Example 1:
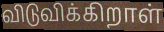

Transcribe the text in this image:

விடுவிக்கிறாள்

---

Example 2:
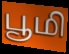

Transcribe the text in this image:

பூமி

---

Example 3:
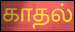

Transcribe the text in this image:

காதல்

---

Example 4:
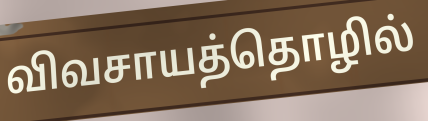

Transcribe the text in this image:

விவசாயத்தொழில்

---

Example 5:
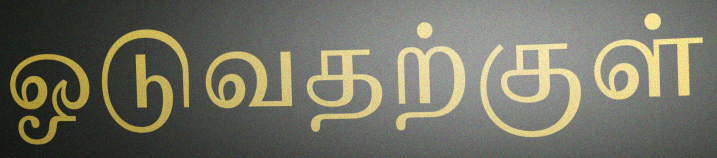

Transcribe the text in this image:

ஓடுவதற்குள்